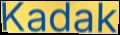
Kadak